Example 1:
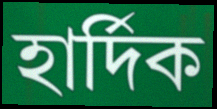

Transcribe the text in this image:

হার্দিক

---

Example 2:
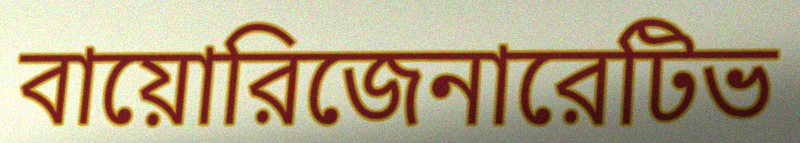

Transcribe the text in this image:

বায়োরিজেনারেটিভ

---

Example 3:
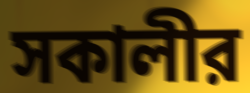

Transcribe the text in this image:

সকালীর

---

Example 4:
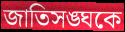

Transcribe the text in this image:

জাতিসঙ্ঘকে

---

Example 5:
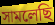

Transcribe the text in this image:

সামলেছি